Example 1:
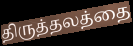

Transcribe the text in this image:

திருத்தலத்தை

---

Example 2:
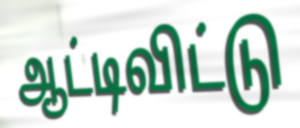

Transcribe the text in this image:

ஆட்டிவிட்டு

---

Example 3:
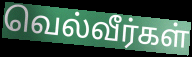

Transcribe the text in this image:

வெல்வீர்கள்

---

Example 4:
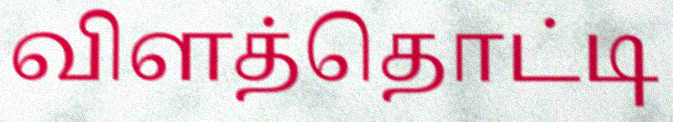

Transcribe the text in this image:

விளத்தொட்டி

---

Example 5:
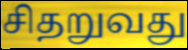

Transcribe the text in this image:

சிதறுவது